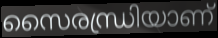
സൈരന്ധ്രിയാണ്